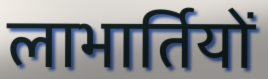
लाभार्तियों